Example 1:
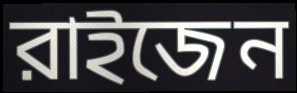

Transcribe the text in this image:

রাইজেন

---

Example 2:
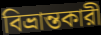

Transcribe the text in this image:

বিভ্রান্তকারী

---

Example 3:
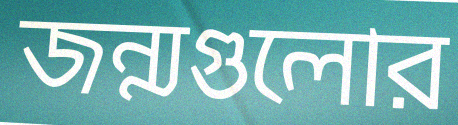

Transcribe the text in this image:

জন্মগুলোর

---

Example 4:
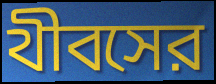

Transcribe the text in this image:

থীবসের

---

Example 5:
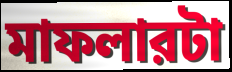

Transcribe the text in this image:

মাফলারটা